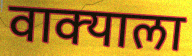
वाक्‍याला